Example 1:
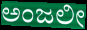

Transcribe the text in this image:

ಅಂಜಲೀ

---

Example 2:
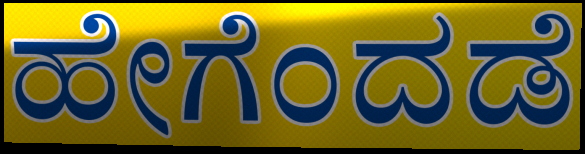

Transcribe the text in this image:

ಹೇಗೆಂದಡೆ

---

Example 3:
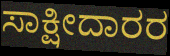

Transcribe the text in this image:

ಸಾಕ್ಷೀದಾರರ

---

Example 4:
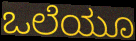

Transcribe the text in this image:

ಒಲೆಯೂ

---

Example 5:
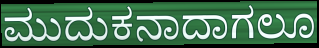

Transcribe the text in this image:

ಮುದುಕನಾದಾಗಲೂ